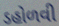
ડહોળવી